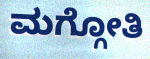
ಮಗ್ಗೋತಿ